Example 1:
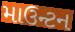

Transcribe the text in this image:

માઉન્ટન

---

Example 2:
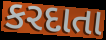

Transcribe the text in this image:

કરદાતા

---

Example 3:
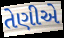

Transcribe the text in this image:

તેણીએ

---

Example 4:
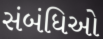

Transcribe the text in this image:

સંબંધિઓ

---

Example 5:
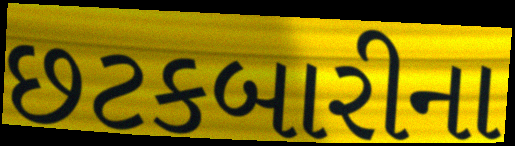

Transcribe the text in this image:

છટકબારીના